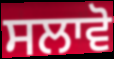
ਸਲਾਵੋ